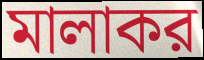
মালাকর